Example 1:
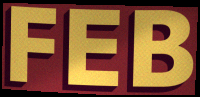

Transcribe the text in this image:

FEB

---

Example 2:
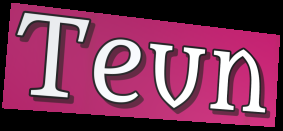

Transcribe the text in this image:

Teun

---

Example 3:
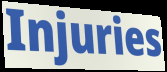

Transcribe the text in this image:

Injuries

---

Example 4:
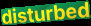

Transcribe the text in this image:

disturbed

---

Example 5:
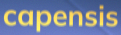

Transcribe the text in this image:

capensis